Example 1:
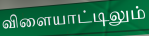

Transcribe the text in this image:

விளையாட்டிலும்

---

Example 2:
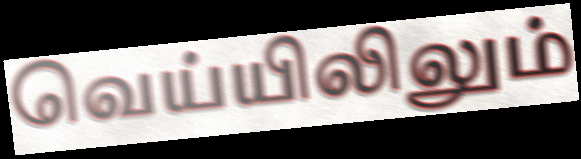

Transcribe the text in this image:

வெய்யிலிலும்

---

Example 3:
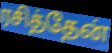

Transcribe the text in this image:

ரசித்தேன்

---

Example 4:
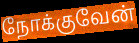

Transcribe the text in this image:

நோக்குவேன்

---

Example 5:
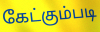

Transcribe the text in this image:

கேட்கும்படி